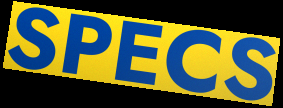
SPECS